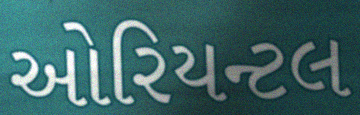
ઓરિયન્ટલ